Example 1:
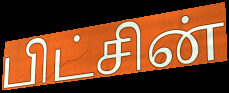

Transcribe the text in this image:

பிட்சின்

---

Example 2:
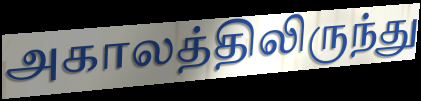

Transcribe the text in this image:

அகாலத்திலிருந்து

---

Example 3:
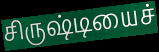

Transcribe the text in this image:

சிருஷ்டியைச்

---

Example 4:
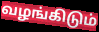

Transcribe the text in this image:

வழங்கிடும்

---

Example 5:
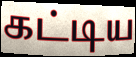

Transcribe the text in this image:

கட்டிய